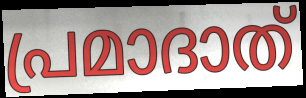
പ്രമാദാത്